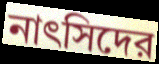
নাৎসিদের